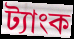
ট্যাংক